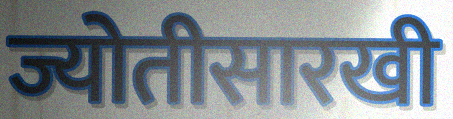
ज्योतीसारखी